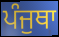
ਪੰਜੁਥਾ